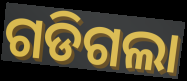
ଗଡିଗଲା